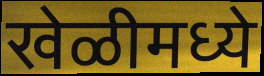
खेळीमध्ये